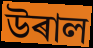
উৰাল